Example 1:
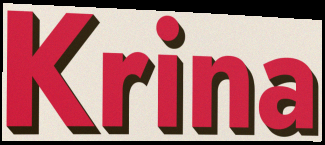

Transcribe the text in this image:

Krina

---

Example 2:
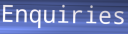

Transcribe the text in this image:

Enquiries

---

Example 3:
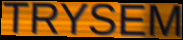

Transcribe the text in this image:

TRYSEM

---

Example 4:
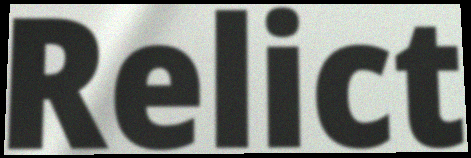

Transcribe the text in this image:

Relict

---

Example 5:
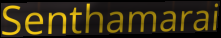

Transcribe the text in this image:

Senthamarai